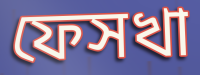
ফেসখা